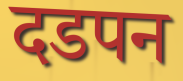
दडपन